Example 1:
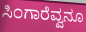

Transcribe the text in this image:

ಸಿಂಗಾರೆವ್ವನೂ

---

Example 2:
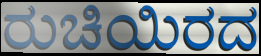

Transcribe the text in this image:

ರುಚಿಯಿರದ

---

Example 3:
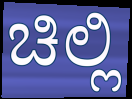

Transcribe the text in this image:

ಚಿಲ್ಲಿ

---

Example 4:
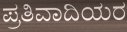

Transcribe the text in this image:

ಪ್ರತಿವಾದಿಯರ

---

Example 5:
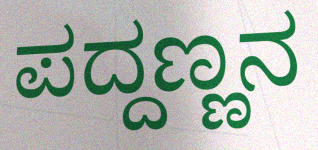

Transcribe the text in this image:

ಪದ್ದಣ್ಣನ